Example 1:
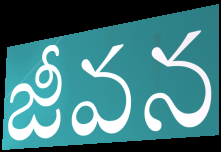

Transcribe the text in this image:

జీవన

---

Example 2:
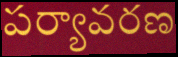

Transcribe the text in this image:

పర్యావరణ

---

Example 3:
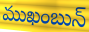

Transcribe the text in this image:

ముఖంబున్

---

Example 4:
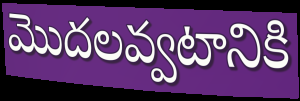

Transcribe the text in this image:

మొదలవ్వటానికి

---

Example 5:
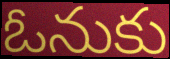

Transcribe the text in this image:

ఓనుకు